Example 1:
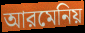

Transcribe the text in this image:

আরমেনিয়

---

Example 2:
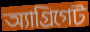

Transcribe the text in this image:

অ্যাগ্রিগেট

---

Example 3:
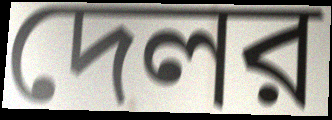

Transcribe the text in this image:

দেলর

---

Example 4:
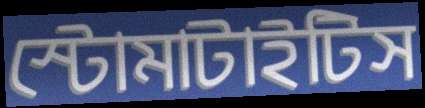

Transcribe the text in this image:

স্টোমাটাইটিস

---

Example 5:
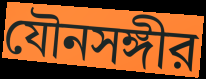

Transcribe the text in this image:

যৌনসঙ্গীর